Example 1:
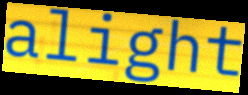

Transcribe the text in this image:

alight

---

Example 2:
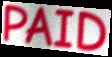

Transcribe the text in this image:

PAID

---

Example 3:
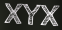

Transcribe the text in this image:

XYX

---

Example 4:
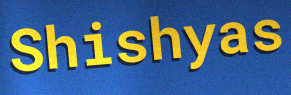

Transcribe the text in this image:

Shishyas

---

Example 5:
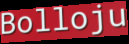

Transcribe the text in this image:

Bolloju